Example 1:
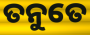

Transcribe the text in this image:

ତନୁତେ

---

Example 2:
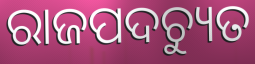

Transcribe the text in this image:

ରାଜପଦଚ୍ୟୁତ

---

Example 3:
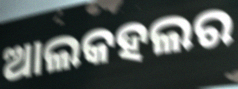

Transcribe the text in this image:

ଆଲକହଲର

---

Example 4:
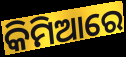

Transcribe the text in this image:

କିମିଆରେ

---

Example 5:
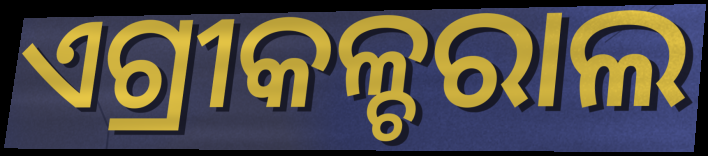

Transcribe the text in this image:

ଏଗ୍ରୀକଳ୍ଚରାଲ